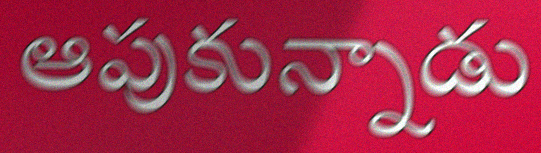
ఆపుకున్నాడు